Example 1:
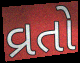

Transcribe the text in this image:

વ્રતો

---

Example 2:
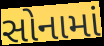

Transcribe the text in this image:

સોનામાં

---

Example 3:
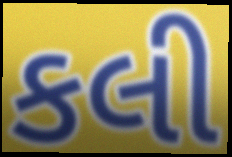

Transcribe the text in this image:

કલી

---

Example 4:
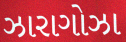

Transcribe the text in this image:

ઝારાગોઝા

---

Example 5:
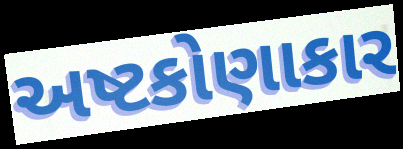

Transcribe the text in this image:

અષ્ટકોણાકાર